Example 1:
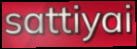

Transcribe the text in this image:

sattiyai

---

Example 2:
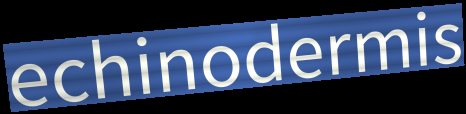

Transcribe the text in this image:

echinodermis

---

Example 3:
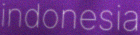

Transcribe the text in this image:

indonesia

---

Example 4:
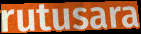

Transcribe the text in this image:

rutusara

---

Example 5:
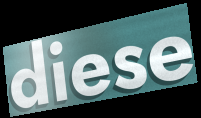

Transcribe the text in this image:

diese